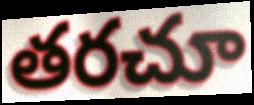
తరచూ